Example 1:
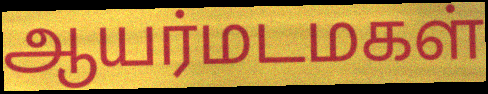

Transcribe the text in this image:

ஆயர்மடமகள்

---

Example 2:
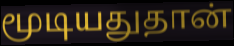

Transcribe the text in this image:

மூடியதுதான்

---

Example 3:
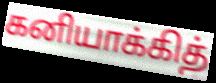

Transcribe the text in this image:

கனியாக்கித்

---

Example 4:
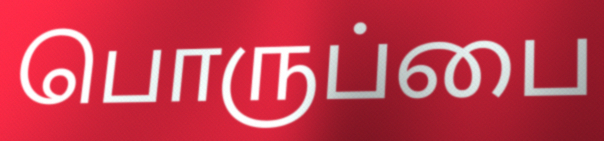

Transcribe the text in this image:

பொருப்பை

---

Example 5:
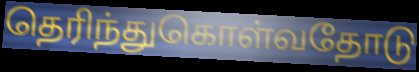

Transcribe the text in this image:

தெரிந்துகொள்வதோடு